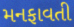
મનફાવતી